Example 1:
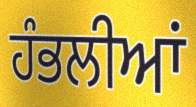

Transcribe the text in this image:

ਹੰਭਲੀਆਂ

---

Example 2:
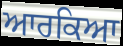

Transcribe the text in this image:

ਆਰਕਿਆ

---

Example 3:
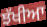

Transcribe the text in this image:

ਝੱਖੀਆ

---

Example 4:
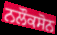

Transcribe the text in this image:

ਨਲੌਕਸੋਨ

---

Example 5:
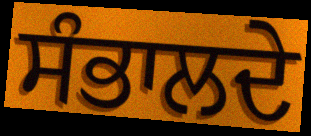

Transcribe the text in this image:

ਸੰਭਾਲਦੇ